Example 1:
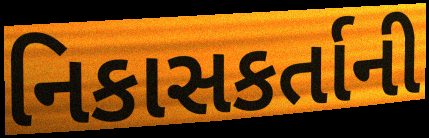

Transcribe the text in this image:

નિકાસકર્તાની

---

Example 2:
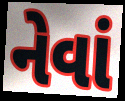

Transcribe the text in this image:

નેવાં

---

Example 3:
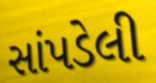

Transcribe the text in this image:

સાંપડેલી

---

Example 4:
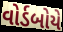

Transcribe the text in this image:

વોર્ડબોયે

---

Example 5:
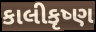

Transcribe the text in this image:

કાલીકૃષ્ણ